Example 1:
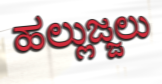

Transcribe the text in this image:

ಹಲ್ಲುಜ್ಜಲು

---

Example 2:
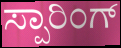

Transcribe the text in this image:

ಸ್ಪಾರಿಂಗ್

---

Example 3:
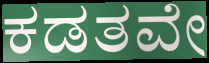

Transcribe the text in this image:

ಕಡತವೇ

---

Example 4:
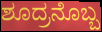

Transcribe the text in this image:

ಶೂದ್ರನೊಬ್ಬ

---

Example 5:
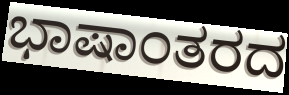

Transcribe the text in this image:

ಭಾಷಾಂತರದ